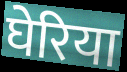
घेरिया